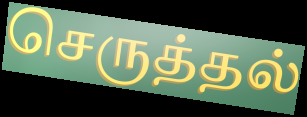
செருத்தல்